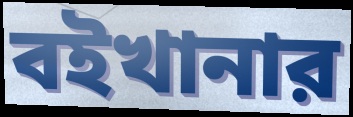
বইখানার